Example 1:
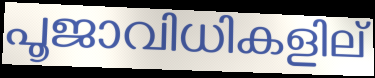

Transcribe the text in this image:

പൂജാവിധികളില്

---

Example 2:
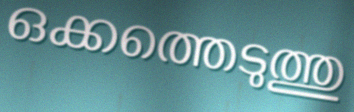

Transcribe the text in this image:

ഒക്കത്തെടുത്തു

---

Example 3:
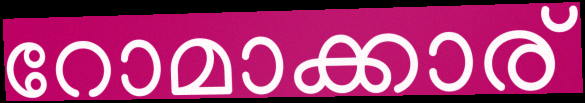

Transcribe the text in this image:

റോമാക്കാര്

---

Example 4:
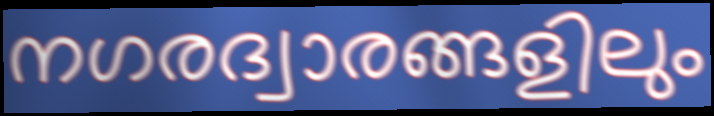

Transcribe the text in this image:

നഗരദ്വാരങ്ങളിലും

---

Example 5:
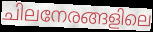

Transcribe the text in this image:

ചിലനേരങ്ങളിലെ